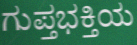
ಗುಪ್ತಭಕ್ತಿಯ